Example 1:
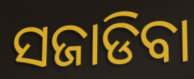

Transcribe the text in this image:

ସଜାଡିବା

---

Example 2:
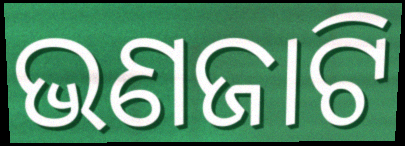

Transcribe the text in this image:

ଭଣଜାଟି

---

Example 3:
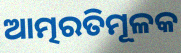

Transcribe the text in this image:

ଆତ୍ମରତିମୂଳକ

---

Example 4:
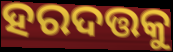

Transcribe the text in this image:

ହରଦତ୍ତକୁ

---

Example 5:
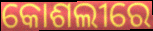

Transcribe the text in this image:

କୋଶଲୀରେ